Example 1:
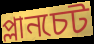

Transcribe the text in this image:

প্লানচেট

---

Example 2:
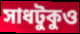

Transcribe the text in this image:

সাধটুকুও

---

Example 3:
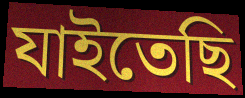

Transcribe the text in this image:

যাইতেছি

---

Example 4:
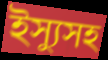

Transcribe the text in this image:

ইস্যুসহ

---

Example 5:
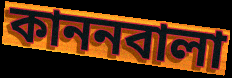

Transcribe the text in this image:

কাননবালা